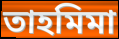
তাহমিমা